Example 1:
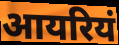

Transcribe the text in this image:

आयरियं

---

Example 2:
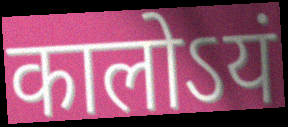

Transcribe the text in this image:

कालोऽयं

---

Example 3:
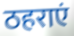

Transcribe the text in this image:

ठहराएं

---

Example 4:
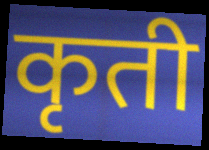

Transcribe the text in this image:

कृती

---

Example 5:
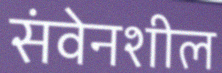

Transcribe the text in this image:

संवेनशील